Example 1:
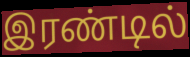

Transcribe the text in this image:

இரண்டில்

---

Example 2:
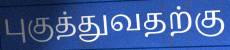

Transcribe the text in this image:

புகுத்துவதற்கு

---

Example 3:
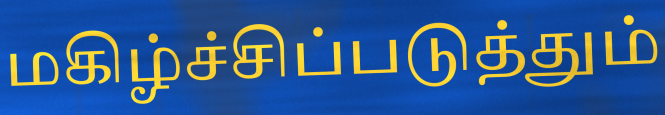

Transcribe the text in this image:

மகிழ்ச்சிப்படுத்தும்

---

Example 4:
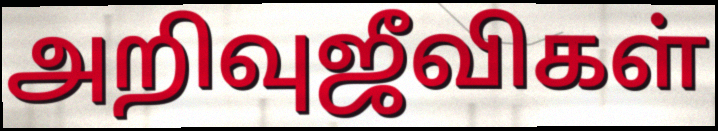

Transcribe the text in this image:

அறிவுஜீவிகள்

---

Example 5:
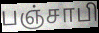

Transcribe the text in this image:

பஞ்சாபி